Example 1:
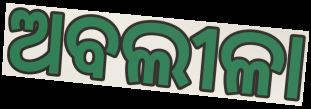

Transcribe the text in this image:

ଅବଲୀଳା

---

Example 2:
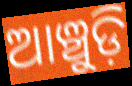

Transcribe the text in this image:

ଆଞ୍ଚୁଡ଼ି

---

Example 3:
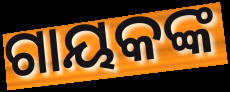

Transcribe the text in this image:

ଗାୟକଙ୍କ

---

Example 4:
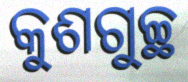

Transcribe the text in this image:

କୁଶଗୁଚ୍ଛ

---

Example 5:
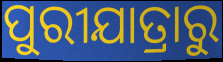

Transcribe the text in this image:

ପୁରୀଯାତ୍ରାରୁ